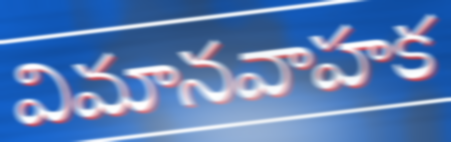
విమానవాహక